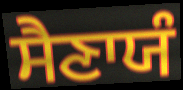
ਸੈਣਾਯੰ